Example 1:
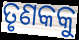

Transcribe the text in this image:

ତୃଣକକୁ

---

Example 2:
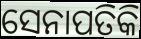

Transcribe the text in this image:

ସେନାପତିକି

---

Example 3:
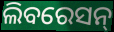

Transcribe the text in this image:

ଲିବରେସନ୍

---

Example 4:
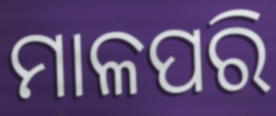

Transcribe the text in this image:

ମାଳପରି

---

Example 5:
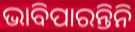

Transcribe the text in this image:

ଭାବିପାରନ୍ତିନି